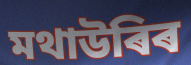
মথাউৰিৰ